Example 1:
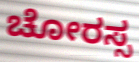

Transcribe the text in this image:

ಚೋರಸ್ಸ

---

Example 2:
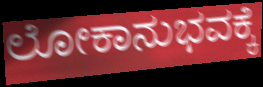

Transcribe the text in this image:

ಲೋಕಾನುಭವಕ್ಕೆ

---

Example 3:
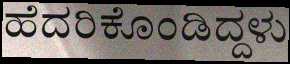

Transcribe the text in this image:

ಹೆದರಿಕೊಂಡಿದ್ದಳು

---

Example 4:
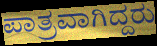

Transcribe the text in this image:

ಪಾತ್ರವಾಗಿದ್ದರು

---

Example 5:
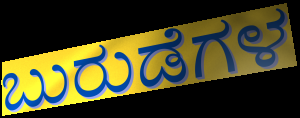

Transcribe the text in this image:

ಬುರುಡೆಗಳ